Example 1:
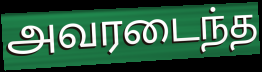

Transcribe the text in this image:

அவரடைந்த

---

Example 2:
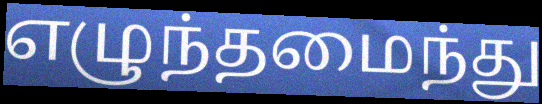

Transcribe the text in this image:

எழுந்தமைந்து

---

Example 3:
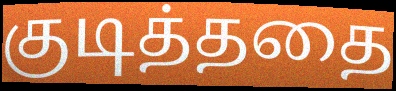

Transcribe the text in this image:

குடித்ததை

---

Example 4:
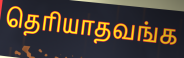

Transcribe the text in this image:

தெரியாதவங்க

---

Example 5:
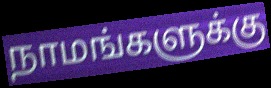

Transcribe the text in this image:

நாமங்களுக்கு